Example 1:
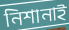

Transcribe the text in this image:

নিশানাই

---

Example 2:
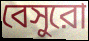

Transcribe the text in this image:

বেসুরো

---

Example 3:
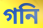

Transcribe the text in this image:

গনি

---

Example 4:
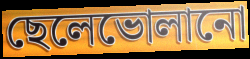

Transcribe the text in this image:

ছেলেভোলানো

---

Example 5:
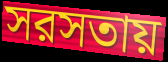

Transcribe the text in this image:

সরসতায়